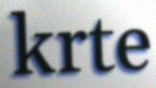
krte